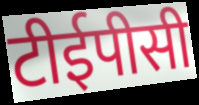
टीईपीसी